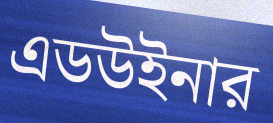
এডউইনার